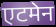
एटमेन